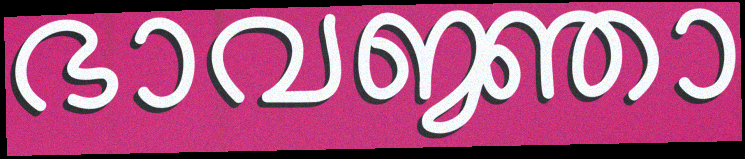
ഭാവജ്ഞാ